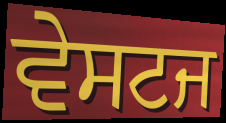
ਵੇਸਟਜ